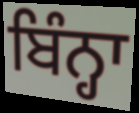
ਬਿੰਨ੍ਹਾ